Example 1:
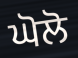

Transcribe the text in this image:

ਘੋਲੋ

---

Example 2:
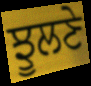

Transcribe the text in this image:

ਝੂਲਣੇ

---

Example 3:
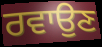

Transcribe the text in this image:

ਰਵਾਉਣ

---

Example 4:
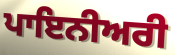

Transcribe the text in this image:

ਪਾਇਨੀਅਰੀ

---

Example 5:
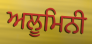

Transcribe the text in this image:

ਅਲੂਮਿਨੀ